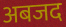
अबजद